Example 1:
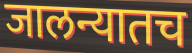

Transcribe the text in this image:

जालन्यातच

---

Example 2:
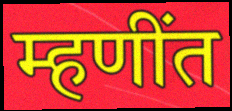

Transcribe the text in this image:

म्हणींत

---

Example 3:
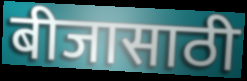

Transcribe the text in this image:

बीजासाठी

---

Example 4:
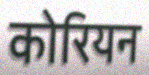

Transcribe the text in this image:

कोरियन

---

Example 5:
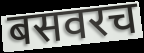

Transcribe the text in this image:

बसवरच